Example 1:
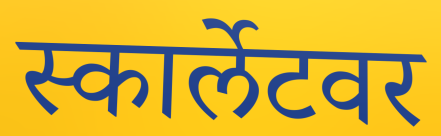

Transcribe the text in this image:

स्कार्लेटवर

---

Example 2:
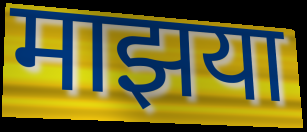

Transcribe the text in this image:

माझया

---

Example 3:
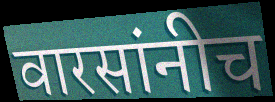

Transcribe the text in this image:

वारसांनीच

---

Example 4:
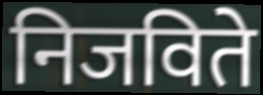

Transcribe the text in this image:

निजविते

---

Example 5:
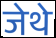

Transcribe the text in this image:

जेथे